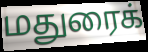
மதுரைக்